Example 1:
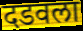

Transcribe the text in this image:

दडवला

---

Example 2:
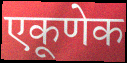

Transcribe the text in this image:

एकूणेक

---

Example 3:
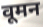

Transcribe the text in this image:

वूमन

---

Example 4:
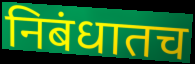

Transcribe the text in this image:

निबंधातच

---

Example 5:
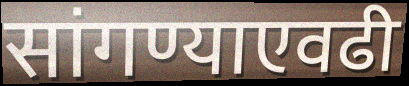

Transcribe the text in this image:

सांगण्याएवढी